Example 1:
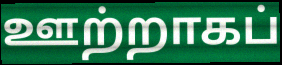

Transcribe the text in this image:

ஊற்றாகப்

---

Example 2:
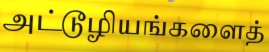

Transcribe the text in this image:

அட்டூழியங்களைத்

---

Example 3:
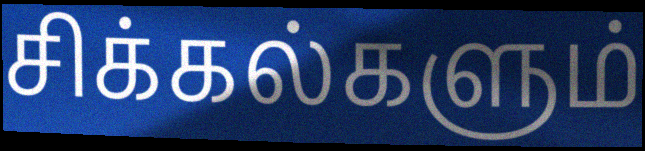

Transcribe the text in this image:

சிக்கல்களும்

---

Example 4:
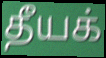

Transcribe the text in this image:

தீயக்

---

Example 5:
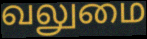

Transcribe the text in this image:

வலுமை